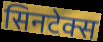
सिनटेक्स